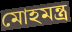
মোহমন্ত্র